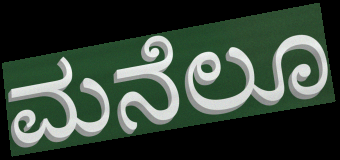
ಮನೆಲೂ